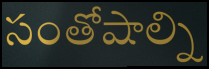
సంతోషాల్ని